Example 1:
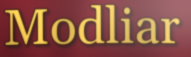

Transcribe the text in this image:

Modliar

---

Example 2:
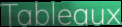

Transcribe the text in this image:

Tableaux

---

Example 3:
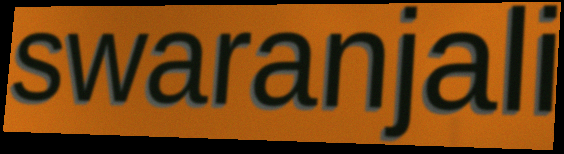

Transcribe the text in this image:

swaranjali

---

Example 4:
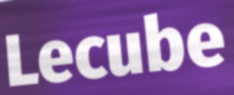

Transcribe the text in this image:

Lecube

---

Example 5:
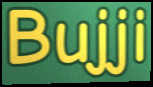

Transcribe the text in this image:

Bujji